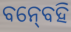
ବନ୍‍ବେହି